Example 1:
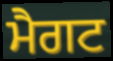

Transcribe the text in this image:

ਮੈਗਟ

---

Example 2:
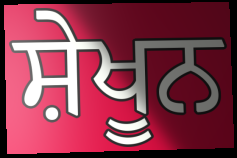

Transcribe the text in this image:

ਸ਼ੇਖੂਨ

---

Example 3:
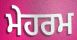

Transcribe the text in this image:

ਮੇਹਰਮ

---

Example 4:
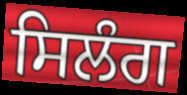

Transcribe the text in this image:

ਸਿਲੰਗ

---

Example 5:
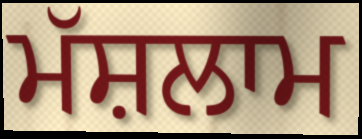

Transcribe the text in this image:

ਮੱਸ਼ਲਾਮ